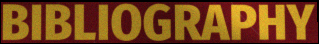
BIBLIOGRAPHY